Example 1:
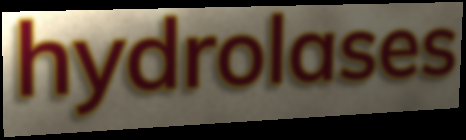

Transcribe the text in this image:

hydrolases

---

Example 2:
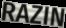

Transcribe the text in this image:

RAZIN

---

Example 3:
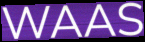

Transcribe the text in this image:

WAAS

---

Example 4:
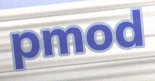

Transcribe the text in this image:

pmod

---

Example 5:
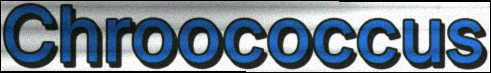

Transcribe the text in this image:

Chroococcus